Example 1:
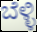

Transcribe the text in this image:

ಬೆಳ್ಳಿ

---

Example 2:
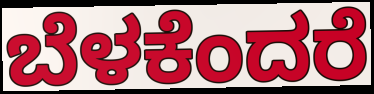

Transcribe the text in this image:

ಬೆಳಕೆಂದರೆ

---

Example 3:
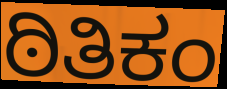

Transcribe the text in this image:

ಠಿತಿಕಂ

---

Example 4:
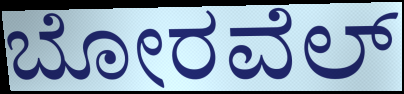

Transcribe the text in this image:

ಬೋರವೆಲ್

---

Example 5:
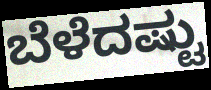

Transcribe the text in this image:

ಬೆಳೆದಷ್ಟು